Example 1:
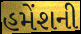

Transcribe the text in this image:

હમેંશની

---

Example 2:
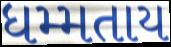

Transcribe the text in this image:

ધમ્મતાય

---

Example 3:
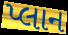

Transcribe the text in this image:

પ્લાન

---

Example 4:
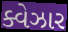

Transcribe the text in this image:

ક્વેઝાર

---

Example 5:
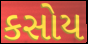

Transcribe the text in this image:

કસોય